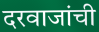
दरवाजांची